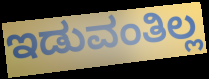
ಇಡುವಂತಿಲ್ಲ